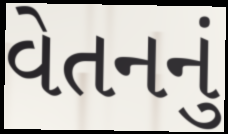
વેતનનું